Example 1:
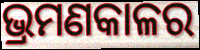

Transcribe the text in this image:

ଭ୍ରମଣକାଳର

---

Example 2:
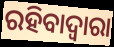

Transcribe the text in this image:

ରହିବାଦ୍ଵାରା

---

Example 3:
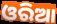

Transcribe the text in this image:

ଓରିଆ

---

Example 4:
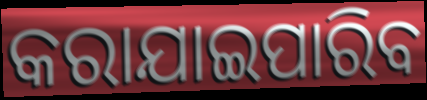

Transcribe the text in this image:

କରାଯାଇପାରିବ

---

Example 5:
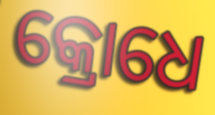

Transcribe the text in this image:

କ୍ରୋଧେ